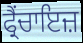
ਫ੍ਰੈਂਚਾਇਜ਼